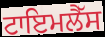
ਟਾਇਮਲੈੱਸ